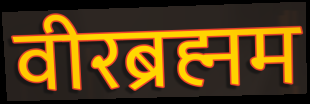
वीरब्रह्मम